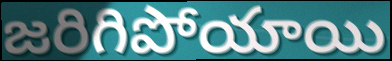
జరిగిపోయాయి